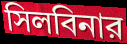
সিলবিনার